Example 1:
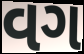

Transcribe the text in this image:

વગ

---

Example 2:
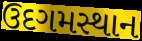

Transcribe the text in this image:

ઉદગમસ્થાન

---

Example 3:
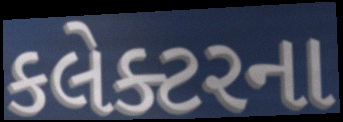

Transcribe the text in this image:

કલેક્ટરના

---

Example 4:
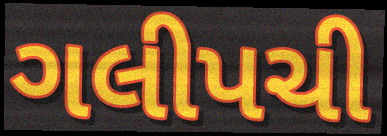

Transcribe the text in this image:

ગલીપચી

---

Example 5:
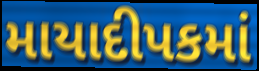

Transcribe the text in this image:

માયાદીપકમાં